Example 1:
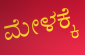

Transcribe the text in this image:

ಮೇಳಕ್ಕೆ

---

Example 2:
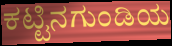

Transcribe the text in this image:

ಕಟ್ಟಿನಗುಂಡಿಯ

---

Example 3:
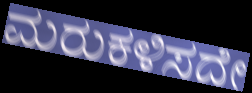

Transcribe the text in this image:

ಮರುಕಳಿಸದೇ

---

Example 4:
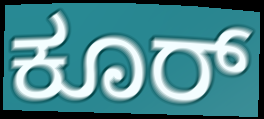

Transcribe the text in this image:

ಕೂರ್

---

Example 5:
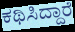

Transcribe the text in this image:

ಕಥಿಸಿದ್ದಾರೆ